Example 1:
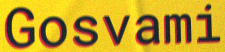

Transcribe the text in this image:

Gosvami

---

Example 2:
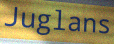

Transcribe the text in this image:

Juglans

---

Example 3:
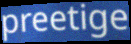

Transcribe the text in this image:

preetige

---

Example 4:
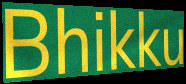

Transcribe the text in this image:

Bhikku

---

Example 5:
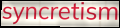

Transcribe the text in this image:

syncretism